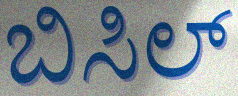
ಬಿಸಿಲ್